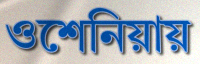
ওশেনিয়ায়